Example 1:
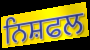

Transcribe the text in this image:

ਨਿਸ਼ਫਲ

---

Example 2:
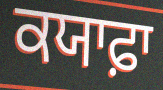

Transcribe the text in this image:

ਕਯਾਫ਼ਾ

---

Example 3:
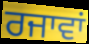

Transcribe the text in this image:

ਰਜਾਵਾਂ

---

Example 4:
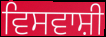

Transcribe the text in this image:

ਵਿਸਵਾਸ਼ੀ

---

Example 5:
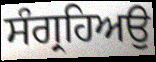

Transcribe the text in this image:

ਸੰਗ੍ਰਹਿਅਉ